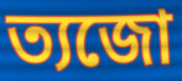
ত্যজো